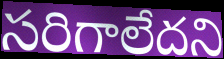
సరిగాలేదని